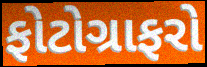
ફોટોગ્રાફરો